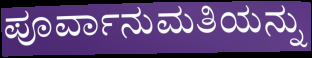
ಪೂರ್ವಾನುಮತಿಯನ್ನು